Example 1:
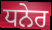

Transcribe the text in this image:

ਧਨੇਰ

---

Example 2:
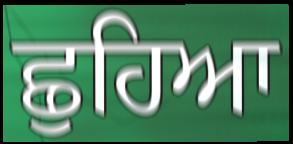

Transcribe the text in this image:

ਛੁਹਿਆ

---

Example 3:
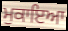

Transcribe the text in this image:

ਮੁਕਾਇਆ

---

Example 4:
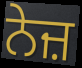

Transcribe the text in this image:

ਨੇਜ਼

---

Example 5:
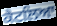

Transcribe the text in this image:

ਕੈਟਲਿਆ